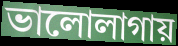
ভালোলাগায়